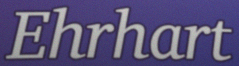
Ehrhart